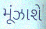
મૂંઝાશે